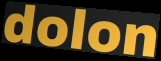
dolon